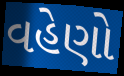
વહેણો